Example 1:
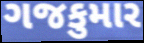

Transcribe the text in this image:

ગજકુમાર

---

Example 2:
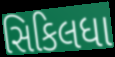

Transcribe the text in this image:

સિકિલધા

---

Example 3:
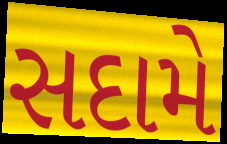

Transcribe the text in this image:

સદામે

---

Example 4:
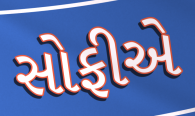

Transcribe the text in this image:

સોફીએ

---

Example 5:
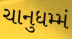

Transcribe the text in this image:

ચાનુધમ્મં